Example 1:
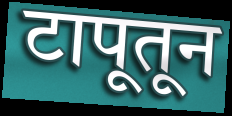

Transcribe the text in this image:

टापूतून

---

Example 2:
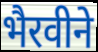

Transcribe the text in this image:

भैरवीने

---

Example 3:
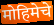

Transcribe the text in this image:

मोहिमेचे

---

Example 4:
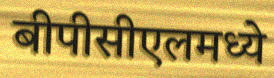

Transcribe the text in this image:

बीपीसीएलमध्ये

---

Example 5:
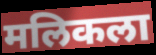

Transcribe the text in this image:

मलिकला